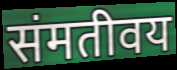
संमतीवय